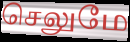
செலுமே